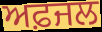
ਅਫ਼ਜਲ